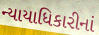
ન્યાયાધિકારીનાં